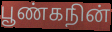
பூண்கநின்